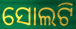
ସୋଲଟି